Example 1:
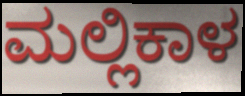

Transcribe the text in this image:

ಮಲ್ಲಿಕಾಳ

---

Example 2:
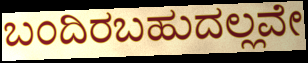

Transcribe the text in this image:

ಬಂದಿರಬಹುದಲ್ಲವೇ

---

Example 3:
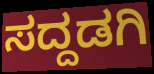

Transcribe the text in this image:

ಸದ್ದಡಗಿ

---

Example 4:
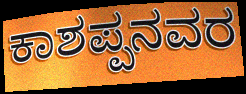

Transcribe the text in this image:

ಕಾಶಪ್ಪನವರ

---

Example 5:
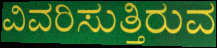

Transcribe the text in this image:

ವಿವರಿಸುತ್ತಿರುವ